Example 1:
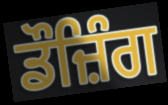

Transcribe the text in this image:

ਡੌਜ਼ਿੰਗ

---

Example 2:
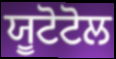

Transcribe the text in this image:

ਯੂਟੋਟੋਲ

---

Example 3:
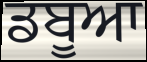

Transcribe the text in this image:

ਡਬੂਆ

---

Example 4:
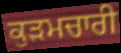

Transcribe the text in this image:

ਕੁੜਮਚਾਰੀ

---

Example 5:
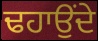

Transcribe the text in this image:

ਢਹਾਉਂਦੇ